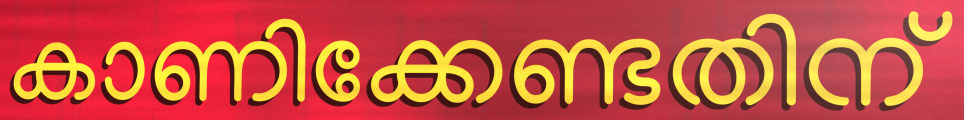
കാണിക്കേണ്ടതിന്